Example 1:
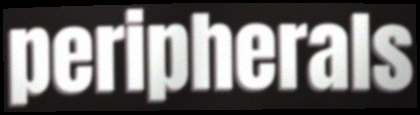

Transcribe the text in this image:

peripherals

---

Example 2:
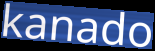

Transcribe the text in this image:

kanado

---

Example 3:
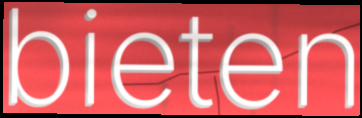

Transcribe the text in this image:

bieten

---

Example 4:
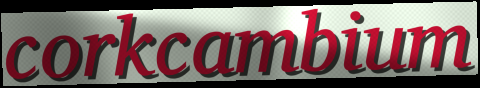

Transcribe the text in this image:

corkcambium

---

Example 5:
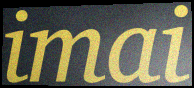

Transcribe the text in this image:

imai